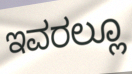
ಇವರಲ್ಲೂ